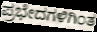
ಪ್ರಭೇದಗಳಿಗಿಂತ